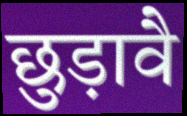
छुड़ावै